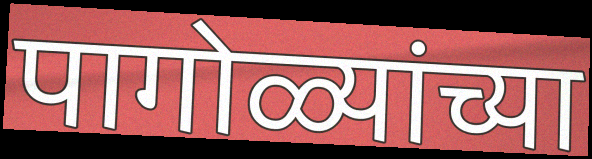
पागोळ्यांच्या